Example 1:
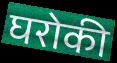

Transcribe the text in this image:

घरोकी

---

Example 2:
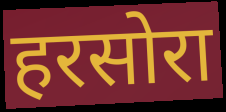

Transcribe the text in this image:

हरसोरा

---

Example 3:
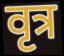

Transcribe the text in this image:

वृत्र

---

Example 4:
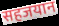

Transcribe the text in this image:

सहजयान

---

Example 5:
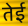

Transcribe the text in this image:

तेई